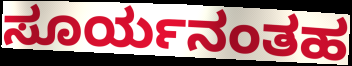
ಸೂರ್ಯನಂತಹ